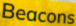
Beacons